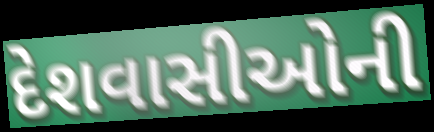
દેશવાસીઓની